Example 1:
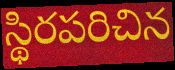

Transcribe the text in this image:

స్థిరపరిచిన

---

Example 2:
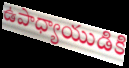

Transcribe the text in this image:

ఉపాధ్యాయుడికి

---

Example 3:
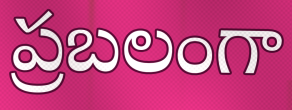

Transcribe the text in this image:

ప్రబలంగా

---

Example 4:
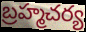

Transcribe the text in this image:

బ్రహ్మచర్య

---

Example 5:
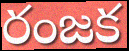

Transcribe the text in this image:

రంజక